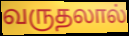
வருதலால்